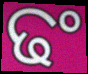
ଢଂ